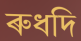
ৰুধদি